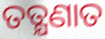
ତତ୍କ୍ଷଣାତ